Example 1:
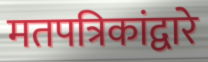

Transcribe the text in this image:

मतपत्रिकांद्वारे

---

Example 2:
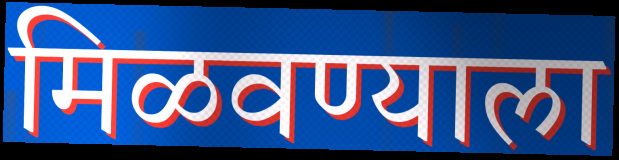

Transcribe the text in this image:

मिळवण्याला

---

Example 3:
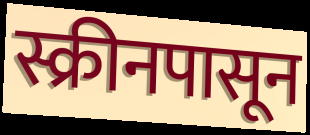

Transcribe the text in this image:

स्क्रीनपासून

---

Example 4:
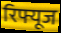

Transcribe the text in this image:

रिफ्यूज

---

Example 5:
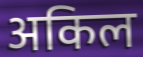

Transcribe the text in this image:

अकिल